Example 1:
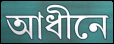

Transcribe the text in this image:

আধীনে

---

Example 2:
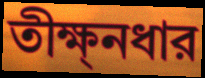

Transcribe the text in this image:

তীক্ষ্নধার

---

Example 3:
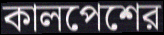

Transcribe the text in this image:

কালপেশের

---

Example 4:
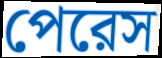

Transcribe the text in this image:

পেরেস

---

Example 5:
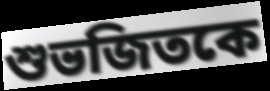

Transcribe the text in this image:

শুভজিতকে